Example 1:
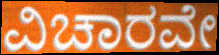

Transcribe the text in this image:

ವಿಚಾರವೇ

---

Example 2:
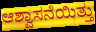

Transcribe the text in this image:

ಆಶ್ವಾಸನೆಯಿತ್ತು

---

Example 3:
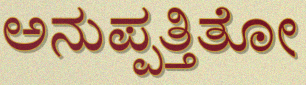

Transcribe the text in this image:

ಅನುಪ್ಪತ್ತಿತೋ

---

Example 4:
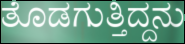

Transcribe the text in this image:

ತೊಡಗುತ್ತಿದ್ದನು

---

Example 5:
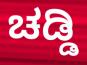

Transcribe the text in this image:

ಚಡ್ಡಿ